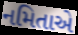
નમિતાએ